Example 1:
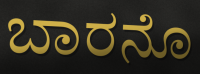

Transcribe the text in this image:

ಬಾರನೊ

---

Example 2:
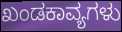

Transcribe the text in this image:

ಖಂಡಕಾವ್ಯಗಳು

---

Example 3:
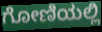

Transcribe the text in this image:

ಗೋಣಿಯಲ್ಲಿ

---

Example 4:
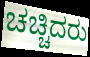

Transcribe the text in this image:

ಚಚ್ಚಿದರು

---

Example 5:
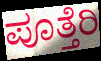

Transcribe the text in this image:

ಪೂತ್ತೆರಿ